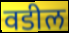
वडील